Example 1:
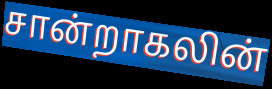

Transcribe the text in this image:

சான்றாகலின்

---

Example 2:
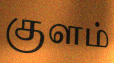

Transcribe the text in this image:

குளம்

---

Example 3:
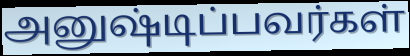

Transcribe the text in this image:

அனுஷ்டிப்பவர்கள்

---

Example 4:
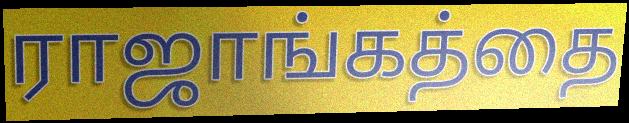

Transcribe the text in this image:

ராஜாங்கத்தை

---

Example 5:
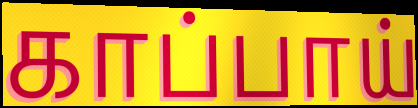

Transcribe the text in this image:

காப்பாய்